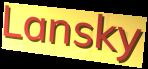
Lansky